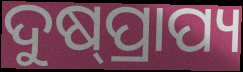
ଦୁଷ୍‌ପ୍ରାପ୍ୟ